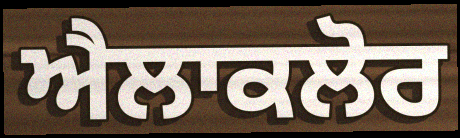
ਐਲਾਕਲੋਰ